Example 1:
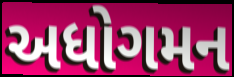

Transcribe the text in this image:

અધોગમન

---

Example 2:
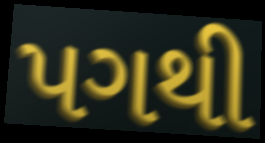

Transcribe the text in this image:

પગથી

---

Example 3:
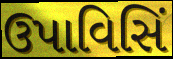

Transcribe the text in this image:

ઉપાવિસિં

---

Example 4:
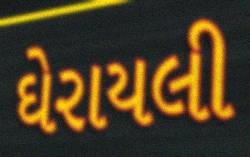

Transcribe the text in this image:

ઘેરાયલી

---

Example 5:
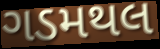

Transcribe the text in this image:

ગડમથલ